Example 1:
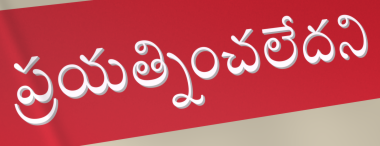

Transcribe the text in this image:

ప్రయత్నించలేదని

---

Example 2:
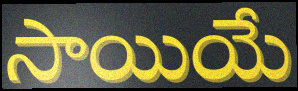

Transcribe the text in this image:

సాయియే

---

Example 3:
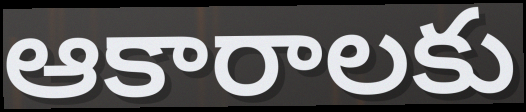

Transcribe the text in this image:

ఆకారాలకు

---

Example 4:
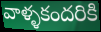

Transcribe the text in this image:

వాళ్ళకందరికి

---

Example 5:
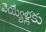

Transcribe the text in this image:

వెయ్యేళ్లకు